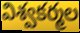
విశ్వకర్మల